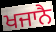
ਖਜਾਨੈ